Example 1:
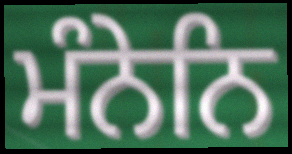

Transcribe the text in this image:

ਮੰਨੇਨਿ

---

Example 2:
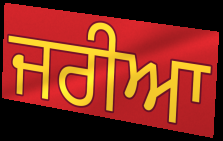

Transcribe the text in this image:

ਜਰੀਆ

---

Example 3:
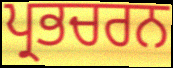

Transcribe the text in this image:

ਪ੍ਰਭਚਰਨ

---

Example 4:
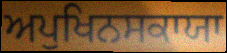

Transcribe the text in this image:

ਅਪੁਖਿਨਸਕਾਯਾ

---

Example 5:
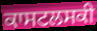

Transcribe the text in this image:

ਕਾਸਟਲਸਕੀ